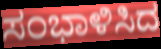
ಸಂಭಾಳಿಸಿದ